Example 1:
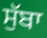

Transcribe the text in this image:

ਸੁੱਬਾ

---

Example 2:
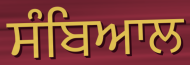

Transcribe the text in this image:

ਸੰਬਿਆਲ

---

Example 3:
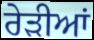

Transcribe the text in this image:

ਰੇੜੀਆਂ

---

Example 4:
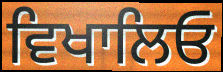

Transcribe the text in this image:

ਵਿਖਾਲਿਓ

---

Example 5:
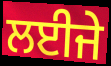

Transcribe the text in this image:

ਲਈਜੇ